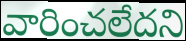
వారించలేదని